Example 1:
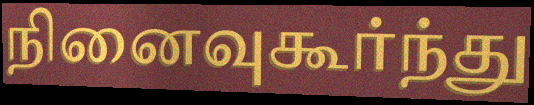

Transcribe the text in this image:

நினைவுகூர்ந்து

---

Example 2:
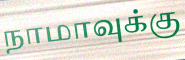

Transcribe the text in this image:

நாமாவுக்கு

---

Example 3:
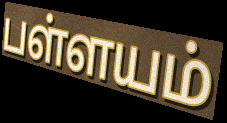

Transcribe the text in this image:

பள்ளயம்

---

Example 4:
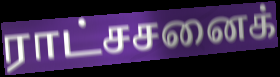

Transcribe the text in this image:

ராட்சசனைக்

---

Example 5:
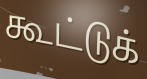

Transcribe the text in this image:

கூட்டுக்